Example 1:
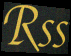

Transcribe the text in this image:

Rss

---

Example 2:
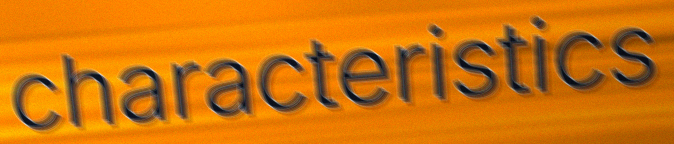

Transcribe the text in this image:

characteristics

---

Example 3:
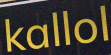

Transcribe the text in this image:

kallol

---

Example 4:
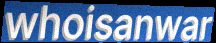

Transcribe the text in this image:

whoisanwar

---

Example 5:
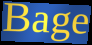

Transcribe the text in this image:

Bage